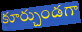
కూర్చుండగా